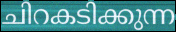
ചിറകടിക്കുന്ന